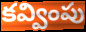
కవ్వింపు